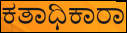
ಕತಾಧಿಕಾರಾ